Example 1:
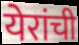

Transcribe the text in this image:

येरांची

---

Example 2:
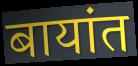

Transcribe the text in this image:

बायांत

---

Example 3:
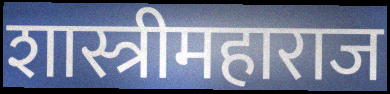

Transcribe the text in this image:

शास्त्रीमहाराज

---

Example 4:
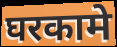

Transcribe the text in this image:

घरकामे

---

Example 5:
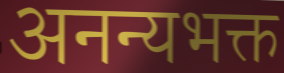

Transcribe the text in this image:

अनन्यभक्त